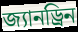
জ্যানড্রিন